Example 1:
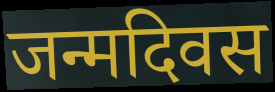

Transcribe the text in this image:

जन्मदिवस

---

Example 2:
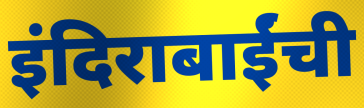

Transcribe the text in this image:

इंदिराबाईंची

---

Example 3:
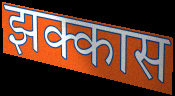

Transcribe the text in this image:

झक्कास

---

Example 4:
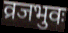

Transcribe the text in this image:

व्रजभुवः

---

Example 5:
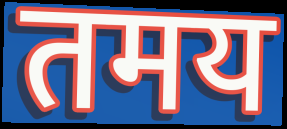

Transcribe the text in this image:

तमय